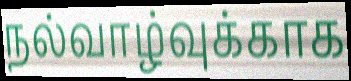
நல்வாழ்வுக்காக